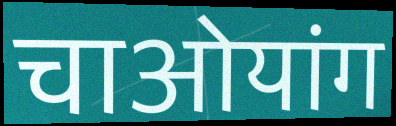
चाओयांग